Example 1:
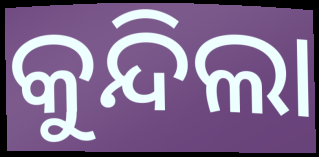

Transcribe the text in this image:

କୁନ୍ଦିଲା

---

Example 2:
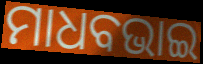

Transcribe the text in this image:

ମାଧବଭାଇ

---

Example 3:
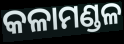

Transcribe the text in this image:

କଳାମଣ୍ଡଳ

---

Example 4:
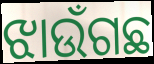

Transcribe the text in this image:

ଝାଉଁଗଛ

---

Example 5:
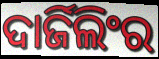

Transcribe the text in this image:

ଦାର୍ଜିଲିଂର